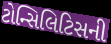
ટોન્સિલિટિસની